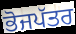
ਭੋਜਪੱਤਰ